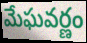
మేఘవర్ణం